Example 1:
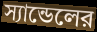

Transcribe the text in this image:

স্যান্ডেলের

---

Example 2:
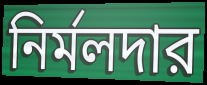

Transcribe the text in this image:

নির্মলদার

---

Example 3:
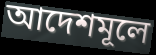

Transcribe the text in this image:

আদেশমূলে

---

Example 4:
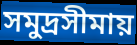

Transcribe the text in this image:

সমুদ্রসীমায়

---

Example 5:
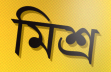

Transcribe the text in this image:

মিশ্র